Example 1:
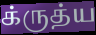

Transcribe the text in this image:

க்ருத்ய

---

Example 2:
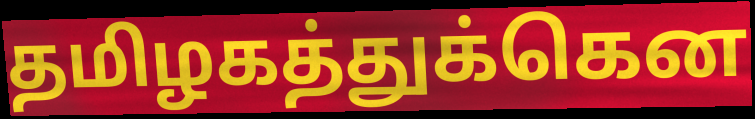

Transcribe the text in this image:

தமிழகத்துக்கென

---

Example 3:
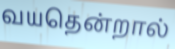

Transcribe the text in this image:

வயதென்றால்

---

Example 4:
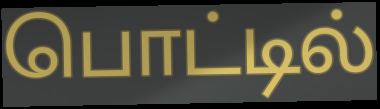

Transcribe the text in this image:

பொட்டில்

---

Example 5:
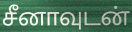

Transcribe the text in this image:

சீனாவுடன்